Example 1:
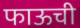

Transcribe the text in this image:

फाऊची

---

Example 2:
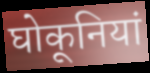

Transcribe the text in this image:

घोकूनियां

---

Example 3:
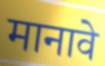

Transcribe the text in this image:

मानावे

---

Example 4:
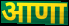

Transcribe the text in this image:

आणा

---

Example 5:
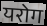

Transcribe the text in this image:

यरोग